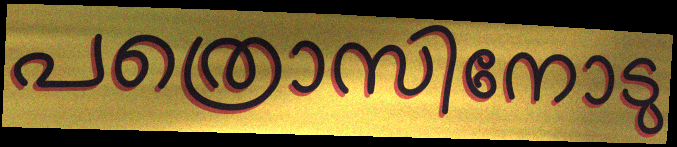
പത്രൊസിനോടു